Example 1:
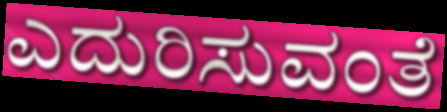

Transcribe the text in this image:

ಎದುರಿಸುವಂತೆ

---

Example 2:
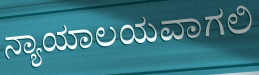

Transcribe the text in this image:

ನ್ಯಾಯಾಲಯವಾಗಲಿ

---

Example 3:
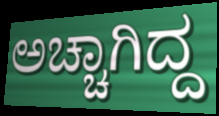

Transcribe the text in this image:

ಅಚ್ಚಾಗಿದ್ದ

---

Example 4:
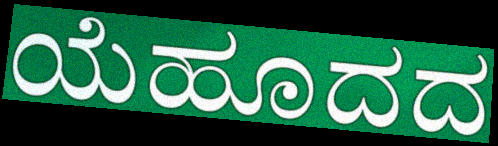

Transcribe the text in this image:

ಯೆಹೂದದ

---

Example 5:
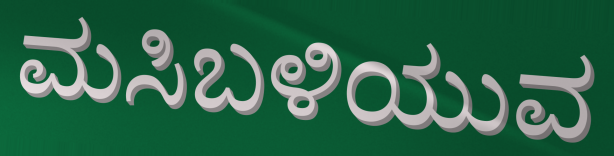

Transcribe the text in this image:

ಮಸಿಬಳಿಯುವ